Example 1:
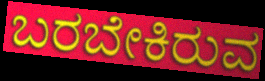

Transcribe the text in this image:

ಬರಬೇಕಿರುವ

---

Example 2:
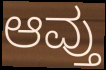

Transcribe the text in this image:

ಆವ್ತು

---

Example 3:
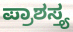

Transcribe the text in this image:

ಪ್ರಾಶಸ್ತ್ಯ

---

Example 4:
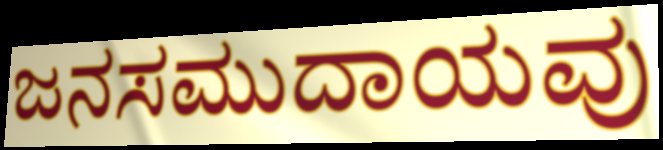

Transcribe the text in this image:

ಜನಸಮುದಾಯವು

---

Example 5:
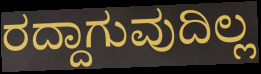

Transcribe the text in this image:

ರದ್ದಾಗುವುದಿಲ್ಲ